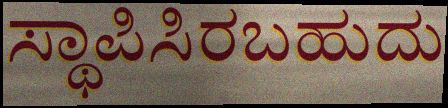
ಸ್ಥಾಪಿಸಿರಬಹುದು